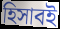
হিসাবই